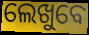
ଲେଖୁବେ